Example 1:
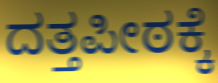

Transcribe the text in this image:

ದತ್ತಪೀಠಕ್ಕೆ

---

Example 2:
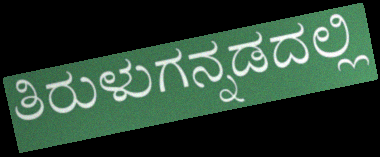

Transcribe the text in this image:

ತಿರುಳುಗನ್ನಡದಲ್ಲಿ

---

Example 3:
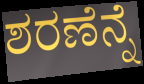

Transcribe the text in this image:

ಶರಣೆನ್ನೆ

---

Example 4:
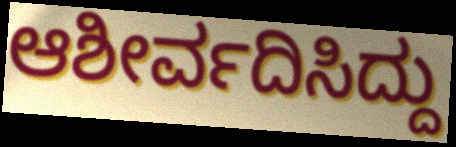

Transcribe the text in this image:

ಆಶೀರ್ವದಿಸಿದ್ದು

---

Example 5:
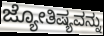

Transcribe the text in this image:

ಜ್ಯೋತಿಷ್ಯವನ್ನು